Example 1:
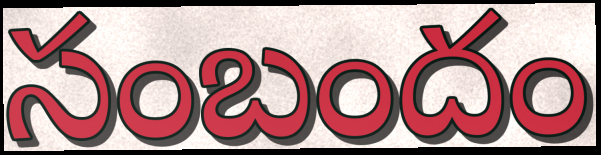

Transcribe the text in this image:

సంబందం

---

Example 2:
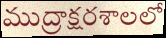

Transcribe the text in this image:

ముద్రాక్షరశాలలో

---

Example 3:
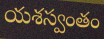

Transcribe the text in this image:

యశస్వంతం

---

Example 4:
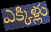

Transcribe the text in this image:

ఎక్కిళ్లు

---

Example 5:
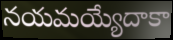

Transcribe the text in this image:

నయమయ్యేదాకా